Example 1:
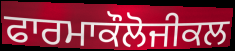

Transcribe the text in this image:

ਫਾਰਮਾਕੌਲੋਜੀਕਲ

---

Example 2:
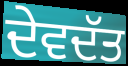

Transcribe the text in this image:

ਦੇਵਦੱਤ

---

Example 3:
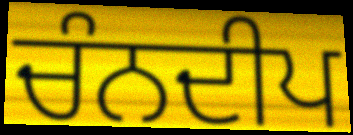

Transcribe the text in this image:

ਚੰਨਦੀਪ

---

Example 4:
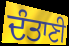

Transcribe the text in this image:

ਦੰਤਾਣੀ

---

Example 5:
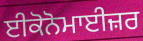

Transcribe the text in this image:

ਈਕੋਨੋਮਾਈਜ਼ਰ